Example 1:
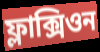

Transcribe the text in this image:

ফ্লাক্সিওন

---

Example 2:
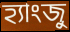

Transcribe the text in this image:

হ্যাংজু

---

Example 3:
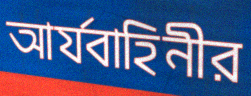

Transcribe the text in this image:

আর্যবাহিনীর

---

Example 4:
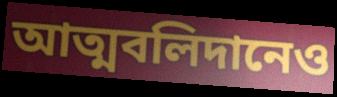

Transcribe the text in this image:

আত্মবলিদানেও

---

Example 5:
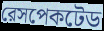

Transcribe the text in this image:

রেসপেকটেড